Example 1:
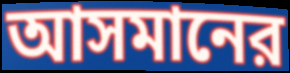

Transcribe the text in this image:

আসমানের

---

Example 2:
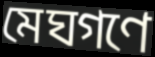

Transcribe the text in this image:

মেঘগণে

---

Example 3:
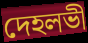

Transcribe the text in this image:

দেহলভী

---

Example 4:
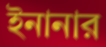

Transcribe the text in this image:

ইনানার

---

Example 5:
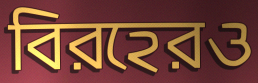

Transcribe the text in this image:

বিরহেরও